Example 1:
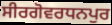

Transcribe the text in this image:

ਸੀਰਗੋਵਰਧਨਪੁਰ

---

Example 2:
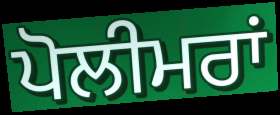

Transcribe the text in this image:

ਪੋਲੀਮਰਾਂ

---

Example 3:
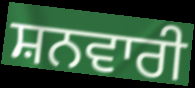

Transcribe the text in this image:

ਸ਼ਨਵਾਰੀ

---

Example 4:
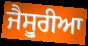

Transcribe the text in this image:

ਜੈਸੂਰੀਆ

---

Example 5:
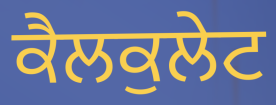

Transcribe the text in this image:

ਕੈਲਕੁਲੇਟ